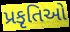
પ્રકૃતિઓ